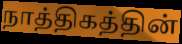
நாத்திகத்தின்